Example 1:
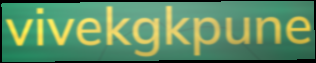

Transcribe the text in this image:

vivekgkpune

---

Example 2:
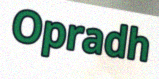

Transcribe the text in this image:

Opradh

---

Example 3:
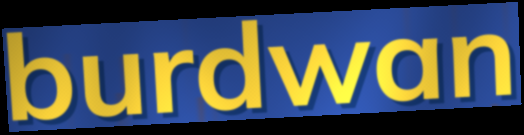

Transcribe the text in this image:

burdwan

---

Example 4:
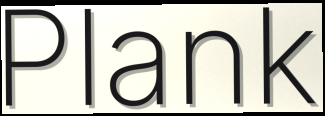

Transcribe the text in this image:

Plank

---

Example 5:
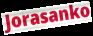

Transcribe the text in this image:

Jorasanko